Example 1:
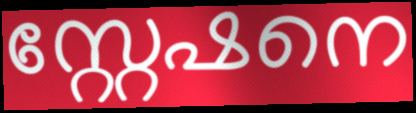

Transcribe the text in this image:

സ്റ്റേഷനെ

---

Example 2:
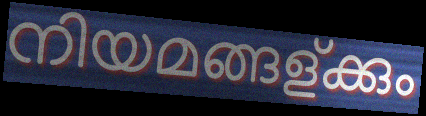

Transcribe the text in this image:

നിയമങ്ങള്ക്കും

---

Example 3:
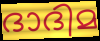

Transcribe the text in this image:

ദാദിമ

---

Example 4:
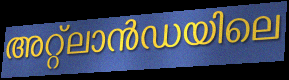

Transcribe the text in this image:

അറ്റ്ലാൻഡയിലെ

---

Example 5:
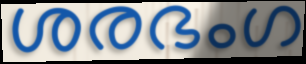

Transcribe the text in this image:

ശരഭംഗ